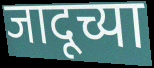
जादूच्या